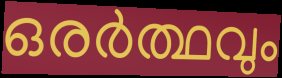
ഒരർത്ഥവും